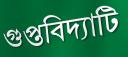
গুপ্তবিদ্যাটি